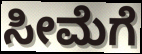
ಸೀಮೆಗೆ